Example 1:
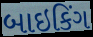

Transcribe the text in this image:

બાઇકિંગ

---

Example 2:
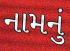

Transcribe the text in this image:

નામનું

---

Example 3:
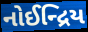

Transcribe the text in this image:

નોઈન્દ્રિય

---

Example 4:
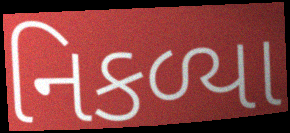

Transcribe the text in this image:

નિકળ્યા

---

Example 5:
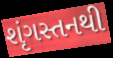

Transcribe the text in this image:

શૃંગસ્તનથી